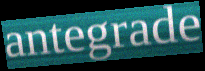
antegrade